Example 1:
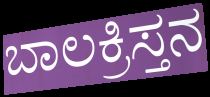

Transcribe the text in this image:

ಬಾಲಕ್ರಿಸ್ತನ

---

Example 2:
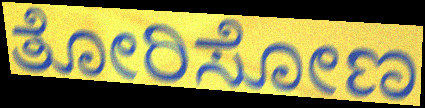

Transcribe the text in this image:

ತೋರಿಸೋಣ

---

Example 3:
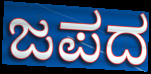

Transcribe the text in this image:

ಜಪದ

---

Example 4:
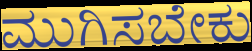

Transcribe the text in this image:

ಮುಗಿಸಬೇಕು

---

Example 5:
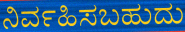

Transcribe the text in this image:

ನಿರ್ವಹಿಸಬಹುದು